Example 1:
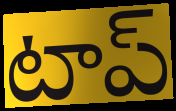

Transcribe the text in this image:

టాప్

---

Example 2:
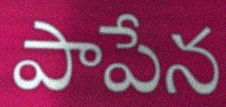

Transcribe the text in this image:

పాపేన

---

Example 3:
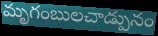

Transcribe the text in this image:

మృగంబులచాడ్పునం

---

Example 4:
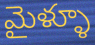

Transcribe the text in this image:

మైళ్ళూ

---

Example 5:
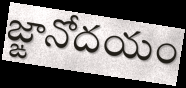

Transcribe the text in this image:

జ్ఙానోదయం